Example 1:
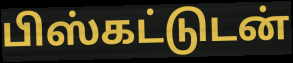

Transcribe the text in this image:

பிஸ்கட்டுடன்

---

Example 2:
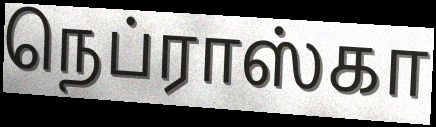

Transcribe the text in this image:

நெப்ராஸ்கா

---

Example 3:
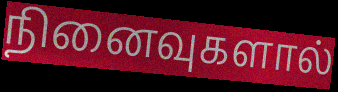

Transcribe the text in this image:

நினைவுகளால்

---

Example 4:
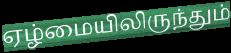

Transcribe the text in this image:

ஏழ்மையிலிருந்தும்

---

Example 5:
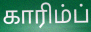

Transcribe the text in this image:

காரிம்ப்